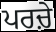
ਪਰਚ਼ੇ